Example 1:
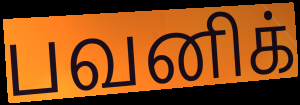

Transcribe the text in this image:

பவனிக்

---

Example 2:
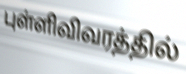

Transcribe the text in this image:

புள்ளிவிவரத்தில்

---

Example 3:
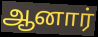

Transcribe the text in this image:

ஆனார்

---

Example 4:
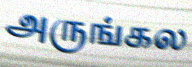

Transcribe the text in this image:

அருங்கல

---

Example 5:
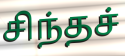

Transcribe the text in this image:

சிந்தச்